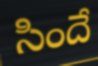
సిందే